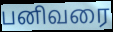
பனிவரை